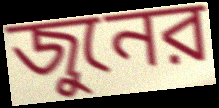
জুনের